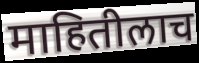
माहितीलाच